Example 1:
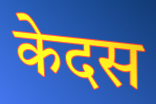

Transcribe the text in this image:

केदस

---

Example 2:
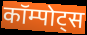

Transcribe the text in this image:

कॉम्पोट्स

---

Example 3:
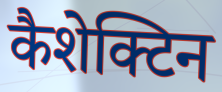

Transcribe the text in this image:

कैशेक्टिन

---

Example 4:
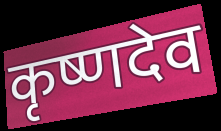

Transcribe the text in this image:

कृष्‍णदेव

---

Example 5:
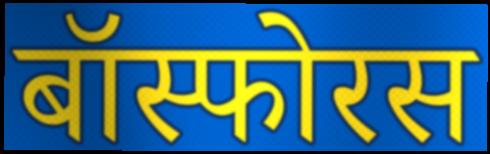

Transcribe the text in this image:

बॉस्फोरस